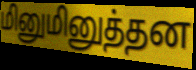
மினுமினுத்தன